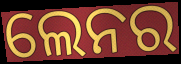
ଲେନର